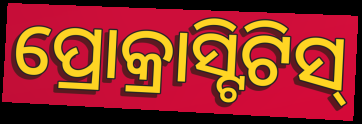
ପ୍ରୋକ୍ରାସ୍ଟିଟିସ୍